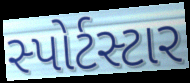
સ્પોર્ટસ્ટાર